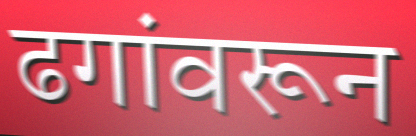
ढगांवरून